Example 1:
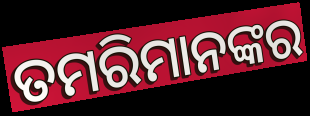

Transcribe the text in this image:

ତମରିମାନଙ୍କର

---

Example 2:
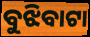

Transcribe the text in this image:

ବୁଝିବାଟା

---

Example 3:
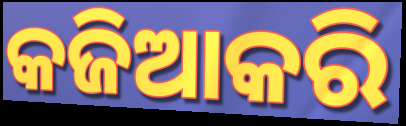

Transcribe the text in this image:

କଜିଆକରି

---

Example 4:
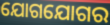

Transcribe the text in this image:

ଯୋଗଯୋଗର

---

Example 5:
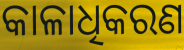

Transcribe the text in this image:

କାଳାଧିକରଣ